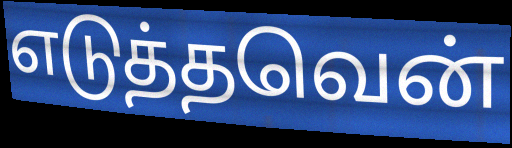
எடுத்தவென்